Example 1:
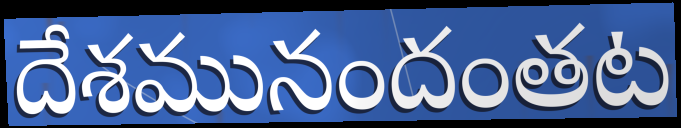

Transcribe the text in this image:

దేశమునందంతట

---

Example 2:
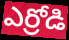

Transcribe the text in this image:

ఎర్రోడి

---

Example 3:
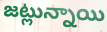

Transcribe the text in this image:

జట్లున్నాయి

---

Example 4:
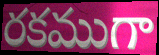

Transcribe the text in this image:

రకముగా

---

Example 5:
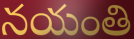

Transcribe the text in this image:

నయంతి